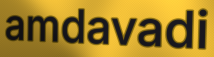
amdavadi